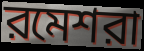
রমেশরা